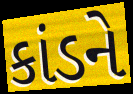
કાંડને